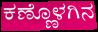
ಕಣ್ಣೊಳಗಿನ